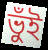
ভুঁই